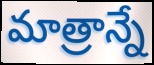
మాత్రాన్నే